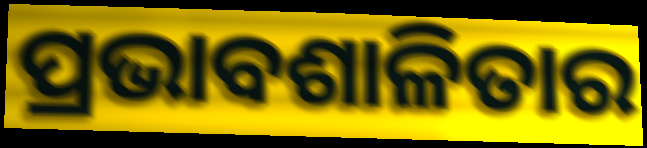
ପ୍ରଭାବଶାଳିତାର